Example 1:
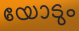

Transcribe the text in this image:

യോടും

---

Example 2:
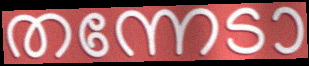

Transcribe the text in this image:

തന്നേടാ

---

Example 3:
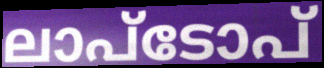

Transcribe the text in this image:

ലാപ്ടോപ്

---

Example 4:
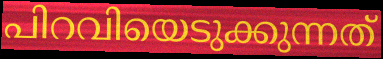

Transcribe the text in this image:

പിറവിയെടുക്കുന്നത്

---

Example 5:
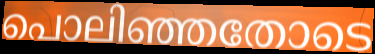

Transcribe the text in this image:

പൊലിഞ്ഞതോടെ